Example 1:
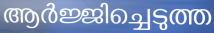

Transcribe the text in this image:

ആർജ്ജിച്ചെടുത്ത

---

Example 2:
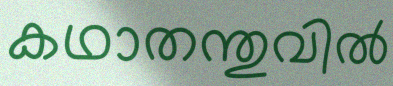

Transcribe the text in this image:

കഥാതന്തുവിൽ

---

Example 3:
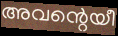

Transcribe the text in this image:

അവന്റെയീ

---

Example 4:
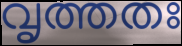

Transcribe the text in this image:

വൃത്തതഃ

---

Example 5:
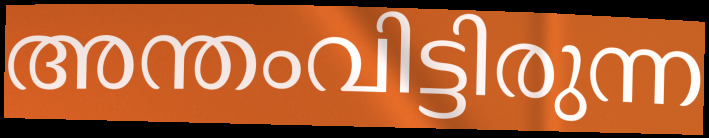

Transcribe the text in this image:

അന്തംവിട്ടിരുന്ന